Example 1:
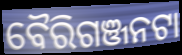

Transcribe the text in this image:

ବୈରିଗଞ୍ଜନଟା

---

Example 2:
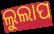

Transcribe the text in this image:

ଲୁଲାପ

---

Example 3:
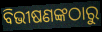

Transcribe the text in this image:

ବିଭୀଷଣଙ୍କଠାରୁ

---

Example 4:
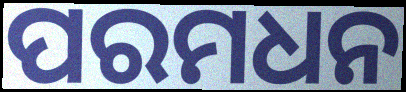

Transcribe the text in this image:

ପରମଧନ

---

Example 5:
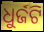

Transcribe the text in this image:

ଧୁର୍ଜଟି